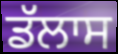
ਡੱਲਾਸ